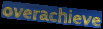
overachieve